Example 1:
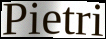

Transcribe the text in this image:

Pietri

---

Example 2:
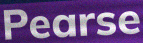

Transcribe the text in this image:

Pearse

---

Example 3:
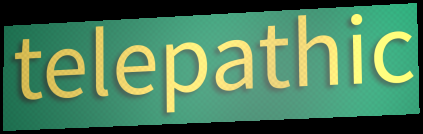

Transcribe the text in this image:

telepathic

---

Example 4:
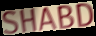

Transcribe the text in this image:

SHABD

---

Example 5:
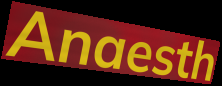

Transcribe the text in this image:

Anaesth